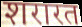
शरारत